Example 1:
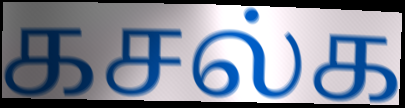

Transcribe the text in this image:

கசல்க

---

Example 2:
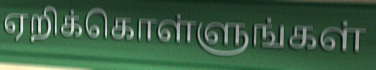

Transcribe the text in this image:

ஏறிக்கொள்ளுங்கள்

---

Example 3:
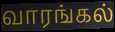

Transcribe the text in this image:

வாரங்கல்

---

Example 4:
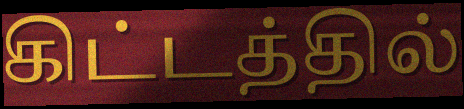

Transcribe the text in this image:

கிட்டத்தில்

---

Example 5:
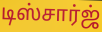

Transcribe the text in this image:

டிஸ்சார்ஜ்